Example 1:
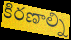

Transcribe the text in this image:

కిరణాల్ని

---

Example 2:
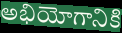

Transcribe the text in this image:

అభియోగానికి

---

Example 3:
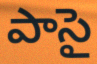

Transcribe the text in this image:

పాసై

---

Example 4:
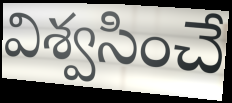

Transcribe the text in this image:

విశ్వసించే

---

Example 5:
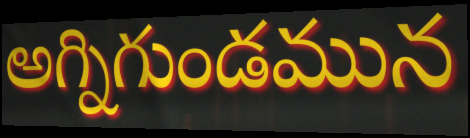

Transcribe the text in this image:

అగ్నిగుండమున